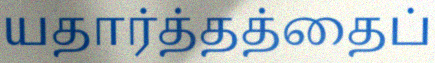
யதார்த்தத்தைப்